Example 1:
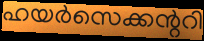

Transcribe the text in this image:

ഹയർസെക്കന്ററി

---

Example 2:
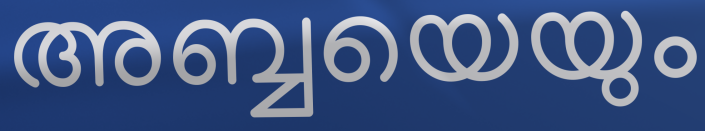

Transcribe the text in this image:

അബ്ബയെയും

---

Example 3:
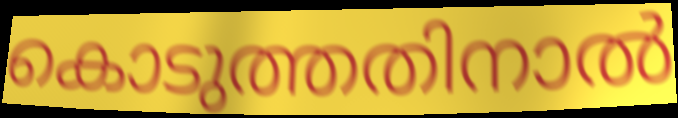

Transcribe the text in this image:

കൊടുത്തതിനാൽ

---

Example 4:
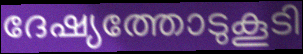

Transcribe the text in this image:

ദേഷ്യത്തോടുകൂടി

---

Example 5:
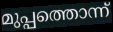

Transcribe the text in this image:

മുപ്പത്തൊന്ന്